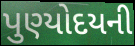
પુણ્યોદયની